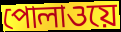
পোলাওয়ে